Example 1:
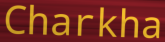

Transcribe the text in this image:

Charkha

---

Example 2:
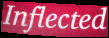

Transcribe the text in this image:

Inflected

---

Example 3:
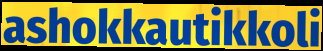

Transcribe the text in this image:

ashokkautikkoli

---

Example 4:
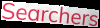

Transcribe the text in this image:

Searchers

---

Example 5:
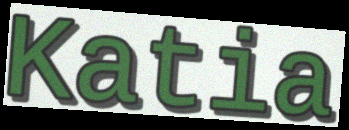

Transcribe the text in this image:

Katia